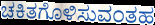
ಚಕಿತಗೊಳಿಸುವಂತಹ